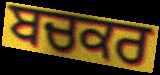
ਬਚਕਰ